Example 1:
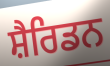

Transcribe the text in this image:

ਸ਼ੈਰਿਡਨ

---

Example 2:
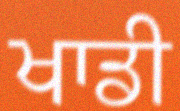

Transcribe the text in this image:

ਖਾਡੀ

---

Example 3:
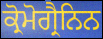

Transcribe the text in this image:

ਕ੍ਰੋਮੋਗ੍ਰੈਨਿਨ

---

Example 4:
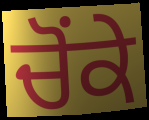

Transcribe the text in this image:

ਚੋਂਕੇ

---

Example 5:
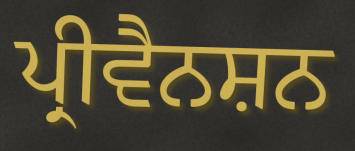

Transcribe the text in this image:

ਪ੍ਰੀਵੈਨਸ਼ਨ